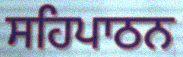
ਸਹਿਪਾਠਨ